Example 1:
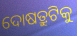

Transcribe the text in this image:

ଦୋଷତ୍ରୁଟିକୁ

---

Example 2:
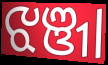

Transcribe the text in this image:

ଝଞ୍ଜା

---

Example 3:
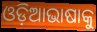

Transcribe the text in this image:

ଓଡ଼ିଆଭାଷାକୁ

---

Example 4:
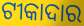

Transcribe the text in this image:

ଟୀକାଦାର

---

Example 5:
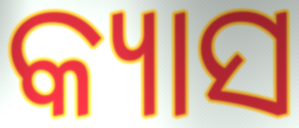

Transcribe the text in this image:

କ୍ୟାସ